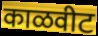
काळवीट